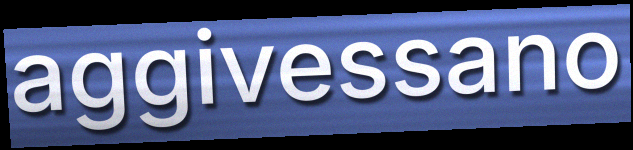
aggivessano